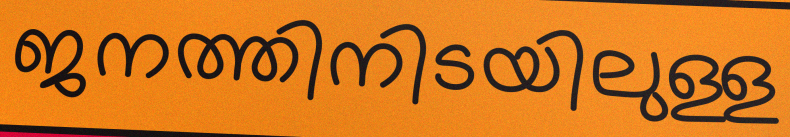
ജനത്തിനിടയിലുള്ള